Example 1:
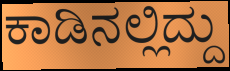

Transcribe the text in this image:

ಕಾಡಿನಲ್ಲಿದ್ದು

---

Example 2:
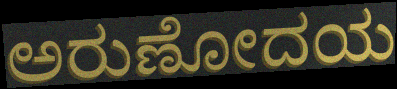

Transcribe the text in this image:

ಅರುಣೋದಯ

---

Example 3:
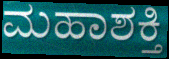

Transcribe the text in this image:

ಮಹಾಶಕ್ತಿ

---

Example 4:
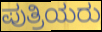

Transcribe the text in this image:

ಪುತ್ರಿಯರು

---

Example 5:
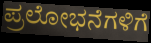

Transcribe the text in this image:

ಪ್ರಲೋಭನೆಗಳಿಗೆ